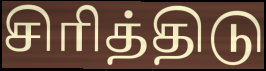
சிரித்திடு